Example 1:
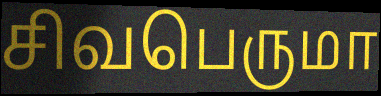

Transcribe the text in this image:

சிவபெருமா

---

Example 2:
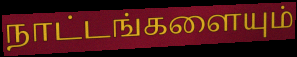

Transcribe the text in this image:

நாட்டங்களையும்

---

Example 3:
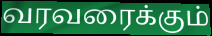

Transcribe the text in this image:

வரவரைக்கும்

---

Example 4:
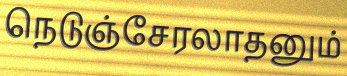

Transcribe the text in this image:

நெடுஞ்சேரலாதனும்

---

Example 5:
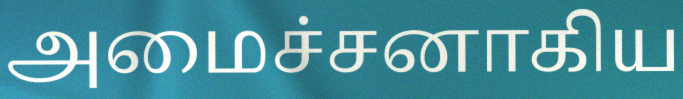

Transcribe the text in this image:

அமைச்சனாகிய